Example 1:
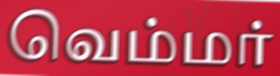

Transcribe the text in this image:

வெம்மர்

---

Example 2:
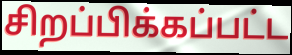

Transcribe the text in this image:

சிறப்பிக்கப்பட்ட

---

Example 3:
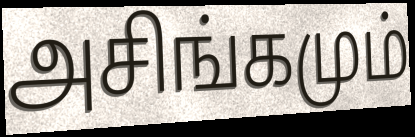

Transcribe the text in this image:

அசிங்கமும்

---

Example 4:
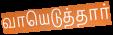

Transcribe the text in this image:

வாயெடுத்தார்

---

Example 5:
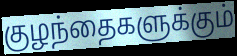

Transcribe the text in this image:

குழந்தைகளுக்கும்